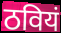
ठवियं